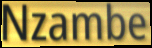
Nzambe